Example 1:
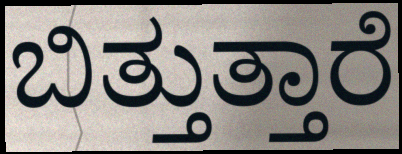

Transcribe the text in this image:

ಬಿತ್ತುತ್ತಾರೆ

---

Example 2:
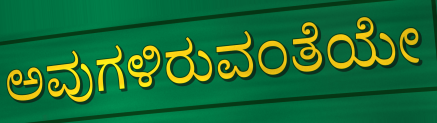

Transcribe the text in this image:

ಅವುಗಳಿರುವಂತೆಯೇ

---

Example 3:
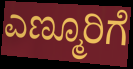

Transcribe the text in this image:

ಎಣ್ಮೂರಿಗೆ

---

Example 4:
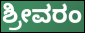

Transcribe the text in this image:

ಶ್ರೀವರಂ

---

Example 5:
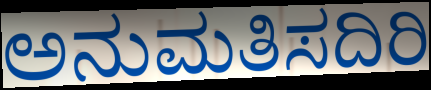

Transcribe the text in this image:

ಅನುಮತಿಸದಿರಿ